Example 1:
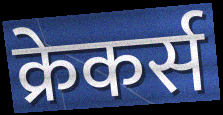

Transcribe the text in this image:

क्रेकर्स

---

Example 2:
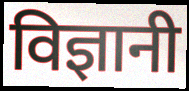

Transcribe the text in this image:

विज्ञानी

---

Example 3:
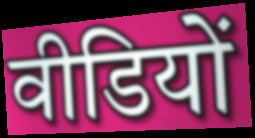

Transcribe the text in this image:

वीडियों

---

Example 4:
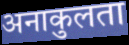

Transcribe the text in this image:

अनाकुलता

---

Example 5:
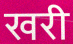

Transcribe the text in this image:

खरी